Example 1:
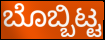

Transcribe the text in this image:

ಬೊಬ್ಬಿಟ್ಟ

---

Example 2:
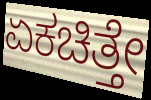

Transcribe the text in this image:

ಏಕಚಿತ್ತೇ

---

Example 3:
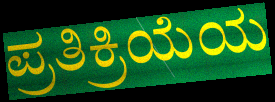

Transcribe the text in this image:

ಪ್ರತಿಕ್ರಿಯೆಯ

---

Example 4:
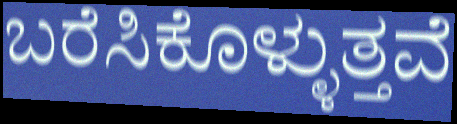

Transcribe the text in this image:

ಬರೆಸಿಕೊಳ್ಳುತ್ತವೆ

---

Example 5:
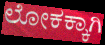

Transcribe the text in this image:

ಲೋಕಕ್ಕಾಗಿ